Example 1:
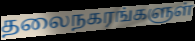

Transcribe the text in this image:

தலைநகரங்களுள்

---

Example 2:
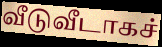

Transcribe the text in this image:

வீடுவீடாகச்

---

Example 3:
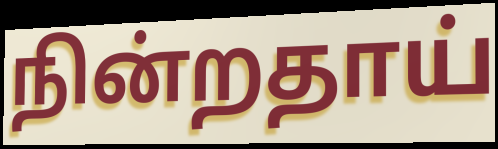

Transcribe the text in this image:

நின்றதாய்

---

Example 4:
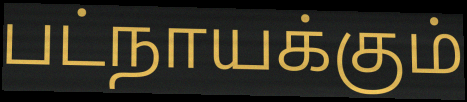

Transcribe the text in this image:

பட்நாயக்கும்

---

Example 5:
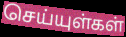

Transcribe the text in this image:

செய்யுள்கள்